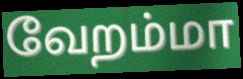
வேறம்மா